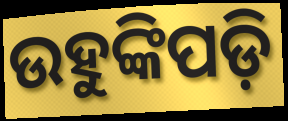
ଉହୁଙ୍କିପଡ଼ି